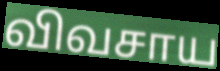
விவசாய